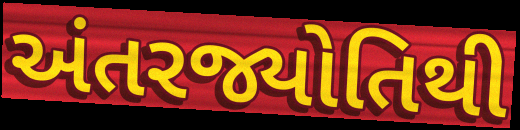
અંતરજ્યોતિથી